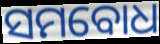
ସମବୋଧ